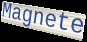
Magnete